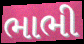
ભાભી